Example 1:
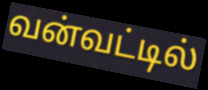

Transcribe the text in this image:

வன்வட்டில்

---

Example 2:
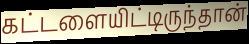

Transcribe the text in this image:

கட்டளையிட்டிருந்தான்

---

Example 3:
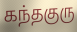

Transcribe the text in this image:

கந்தகுரு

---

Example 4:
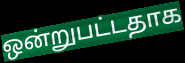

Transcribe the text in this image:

ஒன்றுபட்டதாக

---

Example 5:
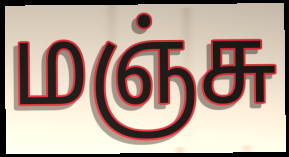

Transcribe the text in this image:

மஞ்சு